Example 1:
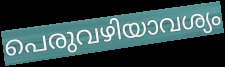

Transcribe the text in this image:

പെരുവഴിയാവശ്യം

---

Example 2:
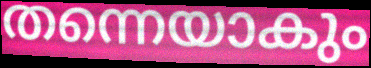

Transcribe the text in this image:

തന്നെയാകും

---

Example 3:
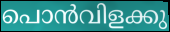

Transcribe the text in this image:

പൊൻവിളക്കു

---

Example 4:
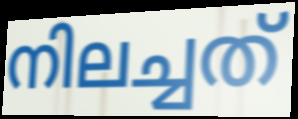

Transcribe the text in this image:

നിലച്ചത്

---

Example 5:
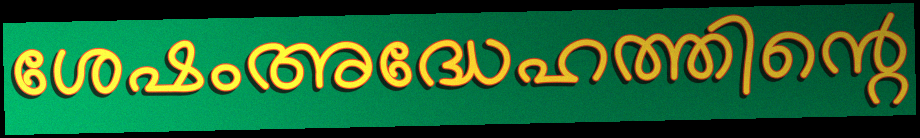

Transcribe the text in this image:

ശേഷംഅദ്ധേഹത്തിന്റെ